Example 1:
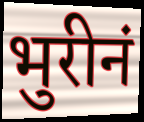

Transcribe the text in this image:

भुरीनं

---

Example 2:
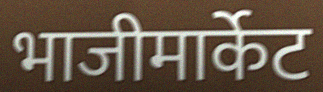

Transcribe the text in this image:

भाजीमार्केट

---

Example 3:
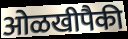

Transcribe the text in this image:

ओळखीपैकी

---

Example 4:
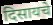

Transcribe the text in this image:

दिसायचे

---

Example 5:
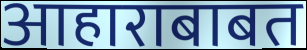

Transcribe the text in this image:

आहाराबाबत